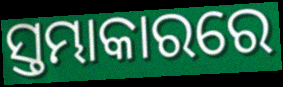
ସ୍ତମ୍ଭାକାରରେ